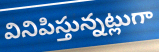
వినిపిస్తున్నట్లుగా